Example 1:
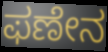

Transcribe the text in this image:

ಫಣೇನ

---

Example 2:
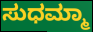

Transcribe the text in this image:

ಸುಧಮ್ಮಾ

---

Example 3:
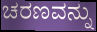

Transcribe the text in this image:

ಚರಣವನ್ನು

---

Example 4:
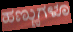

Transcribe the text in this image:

ಹಣ್ಣುಗಳೂ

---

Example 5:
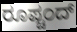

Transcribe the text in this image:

ರೂಪ್ಚಂದ್